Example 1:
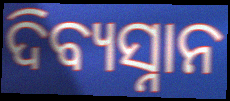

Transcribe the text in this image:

ଦିବ୍ୟସ୍ନାନ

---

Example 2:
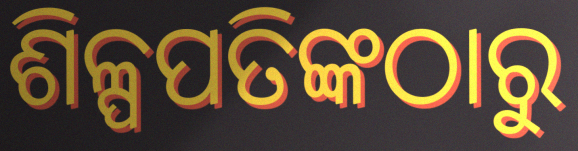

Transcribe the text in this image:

ଶିଳ୍ପପତିଙ୍କଠାରୁ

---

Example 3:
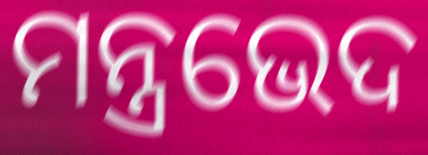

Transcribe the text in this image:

ମନ୍ତ୍ରଭେଦ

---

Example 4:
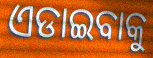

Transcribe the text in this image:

ଏଡାଇବାକୁ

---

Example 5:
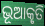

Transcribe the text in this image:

ଭୂଆକୃତି